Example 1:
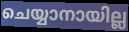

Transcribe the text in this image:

ചെയ്യാനായില്ല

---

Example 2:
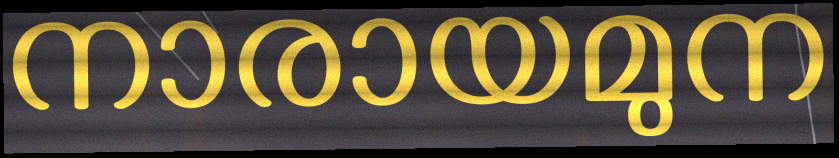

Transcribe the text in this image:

നാരായമുന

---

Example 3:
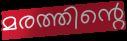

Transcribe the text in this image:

മരത്തിന്റെ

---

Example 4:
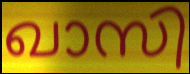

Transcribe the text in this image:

ഖാസി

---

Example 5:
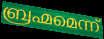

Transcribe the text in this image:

ബ്രഹ്മമെന്ന്